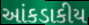
આંકડાકીય